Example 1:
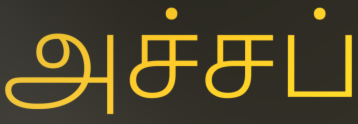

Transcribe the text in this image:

அச்சப்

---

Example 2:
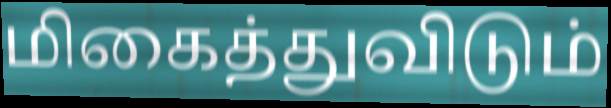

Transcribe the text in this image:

மிகைத்துவிடும்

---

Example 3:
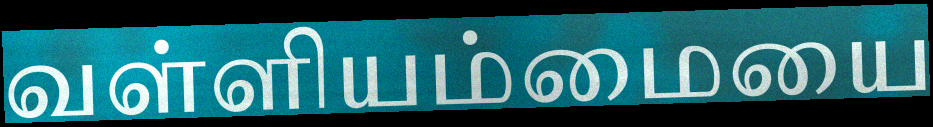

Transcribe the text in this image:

வள்ளியம்மையை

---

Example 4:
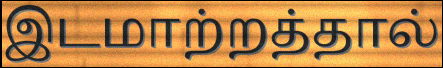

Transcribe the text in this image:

இடமாற்றத்தால்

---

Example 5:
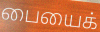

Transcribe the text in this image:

பையைக்